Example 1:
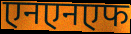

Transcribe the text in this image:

एनएनएफ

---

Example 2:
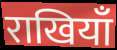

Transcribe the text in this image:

राखियाँ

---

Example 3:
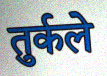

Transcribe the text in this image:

तुर्कले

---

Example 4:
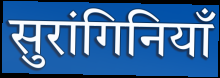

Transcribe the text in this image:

सुरांगिनियाँ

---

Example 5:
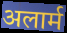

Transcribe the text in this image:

अलार्म